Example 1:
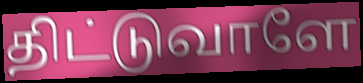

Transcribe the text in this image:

திட்டுவாளே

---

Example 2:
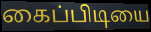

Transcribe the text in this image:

கைப்பிடியை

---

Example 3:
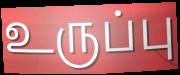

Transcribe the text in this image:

உருப்பு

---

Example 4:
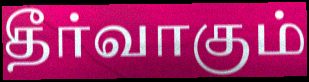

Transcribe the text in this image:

தீர்வாகும்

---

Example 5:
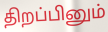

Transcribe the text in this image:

திறப்பினும்